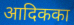
आदिकका